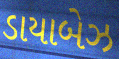
ડાયાબેઝ